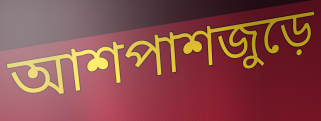
আশপাশজুড়ে